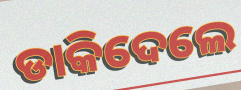
ଡାକିଦେଲେ